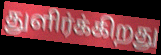
துளிர்க்கிறது